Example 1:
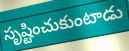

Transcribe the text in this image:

సృష్టించుకుంటాడు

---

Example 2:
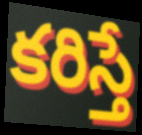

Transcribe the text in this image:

కరిస్తే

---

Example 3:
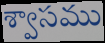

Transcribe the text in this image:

శ్వాసము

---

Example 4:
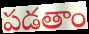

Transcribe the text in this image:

పడతాం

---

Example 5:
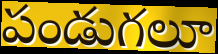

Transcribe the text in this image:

పండుగలూ